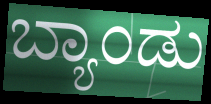
ಬ್ಯಾಂಡು